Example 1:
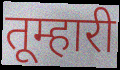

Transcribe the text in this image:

तूम्हारी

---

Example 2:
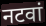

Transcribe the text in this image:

नटवां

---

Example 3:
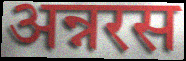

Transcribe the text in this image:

अन्नरस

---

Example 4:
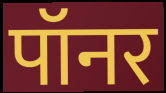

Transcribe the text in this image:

पॉनर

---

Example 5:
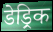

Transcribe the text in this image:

डेड्रिक